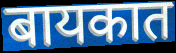
बायकात